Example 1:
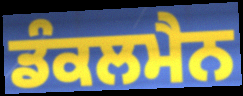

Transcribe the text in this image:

ਡੰਕਲਮੈਨ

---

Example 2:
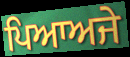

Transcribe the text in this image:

ਪਿਆਅਜੇ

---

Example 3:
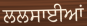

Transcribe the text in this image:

ਲਲਸਾਈਆਂ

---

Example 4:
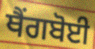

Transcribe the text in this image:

ਥੈਂਗਬੋਈ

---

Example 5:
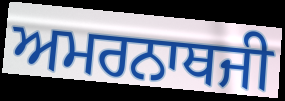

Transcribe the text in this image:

ਅਮਰਨਾਥਜੀ